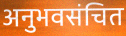
अनुभवसंचित